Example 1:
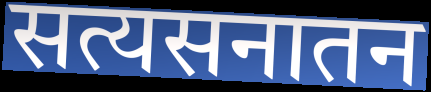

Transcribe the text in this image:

सत्यसनातन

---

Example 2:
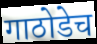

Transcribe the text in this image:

गाठोडेच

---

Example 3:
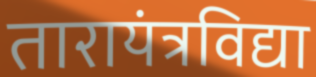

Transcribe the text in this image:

तारायंत्रविद्या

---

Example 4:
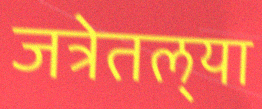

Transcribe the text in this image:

जत्रेतल्या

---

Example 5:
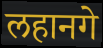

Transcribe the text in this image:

लहानगे